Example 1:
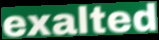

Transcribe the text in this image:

exalted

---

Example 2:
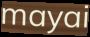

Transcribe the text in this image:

mayai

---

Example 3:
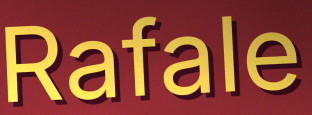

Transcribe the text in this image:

Rafale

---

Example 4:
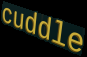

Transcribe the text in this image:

cuddle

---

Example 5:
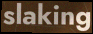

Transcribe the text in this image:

slaking